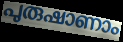
പുരുഷാണാം